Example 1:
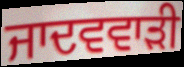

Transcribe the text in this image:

ਜਾਦਵਵਾੜੀ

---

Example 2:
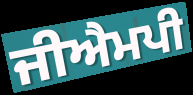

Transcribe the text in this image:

ਜੀਐਮਪੀ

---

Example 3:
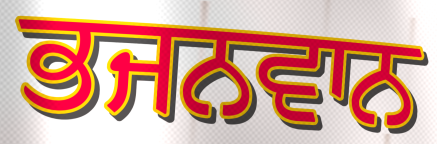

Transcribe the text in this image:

ਭਜਨਵਾਨ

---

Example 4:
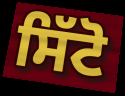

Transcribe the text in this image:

ਸਿੱਟੋ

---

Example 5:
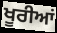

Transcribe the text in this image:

ਖੂਰੀਆਂ